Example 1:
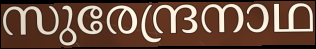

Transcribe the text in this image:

സുരേന്ദ്രനാഥ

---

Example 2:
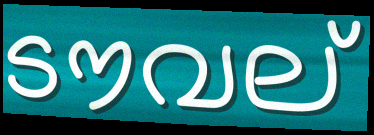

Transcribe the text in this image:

ടൗവല്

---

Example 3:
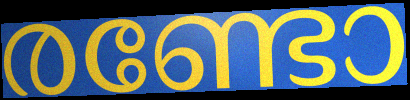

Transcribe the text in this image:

രണ്ടോ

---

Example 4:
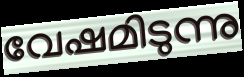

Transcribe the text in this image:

വേഷമിടുന്നു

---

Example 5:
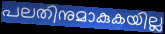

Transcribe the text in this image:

പലതിനുമാകുകയില്ല